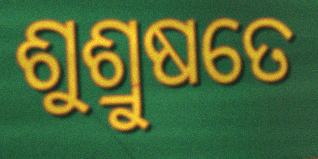
ଶୁଶ୍ରୁଷତେ